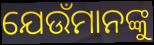
ଯେଉଁମାନଙ୍କୁ